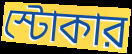
স্টোকার